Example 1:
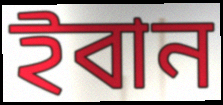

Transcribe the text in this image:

ইবান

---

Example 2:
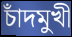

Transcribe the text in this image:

চাঁদমুখী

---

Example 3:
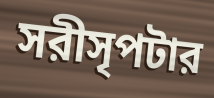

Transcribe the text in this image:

সরীসৃপটার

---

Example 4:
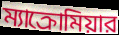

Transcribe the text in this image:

ম্যাক্রোমিয়ার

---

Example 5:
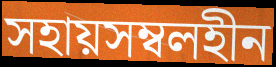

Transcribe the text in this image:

সহায়সম্বলহীন